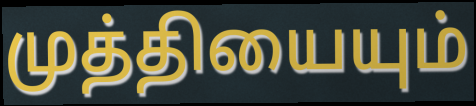
முத்தியையும்